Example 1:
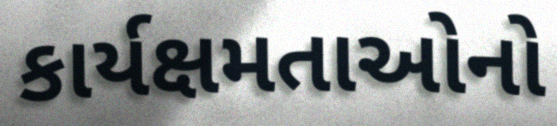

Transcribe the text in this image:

કાર્યક્ષમતાઓનો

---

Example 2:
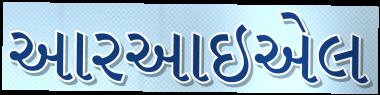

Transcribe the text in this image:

આરઆઇએલ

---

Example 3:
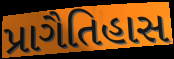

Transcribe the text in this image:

પ્રાગૈતિહાસ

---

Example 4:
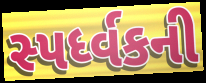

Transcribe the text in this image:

સ્પર્ધ્વકની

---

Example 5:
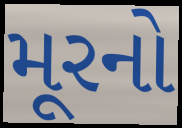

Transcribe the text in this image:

મૂરનો